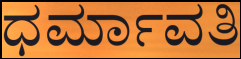
ಧರ್ಮಾವತಿ